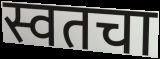
स्वतचा